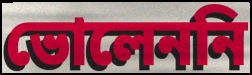
ভোলেননি